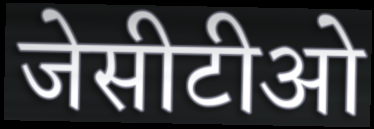
जेसीटीओ